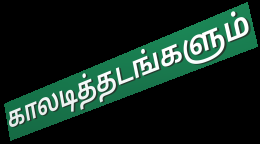
காலடித்தடங்களும்